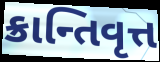
ક્રાન્તિવૃત્ત